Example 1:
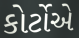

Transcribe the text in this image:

કોર્ટોએ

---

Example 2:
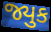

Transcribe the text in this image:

જ્યુક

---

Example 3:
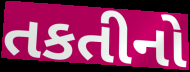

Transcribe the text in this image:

તકતીનો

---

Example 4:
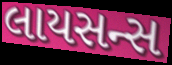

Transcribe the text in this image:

લાયસન્સ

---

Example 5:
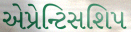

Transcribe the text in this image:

એપ્રેન્ટિસશિપ